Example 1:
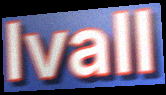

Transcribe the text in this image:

Ivall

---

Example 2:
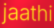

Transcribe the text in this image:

jaathi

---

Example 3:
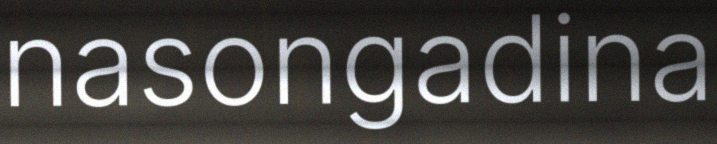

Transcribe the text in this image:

nasongadina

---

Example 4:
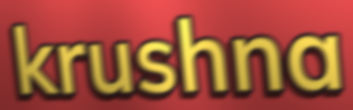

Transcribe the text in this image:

krushna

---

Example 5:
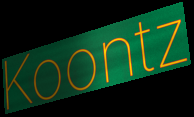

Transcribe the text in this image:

Koontz